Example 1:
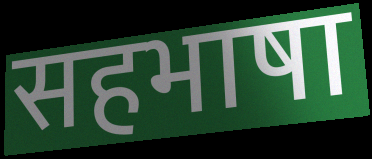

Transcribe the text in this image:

सहभाषा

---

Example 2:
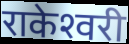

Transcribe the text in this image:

राकेश्वरी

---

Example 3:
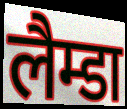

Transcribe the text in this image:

लैम्डा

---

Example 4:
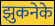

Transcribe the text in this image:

झुकनेके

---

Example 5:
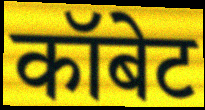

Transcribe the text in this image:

कॉबेट